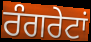
ਰੰਗਰੇਟਾਂ